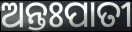
ଅନ୍ତଃପାତୀ